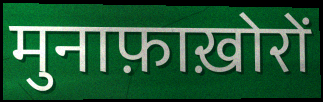
मुनाफ़ाख़ोरों